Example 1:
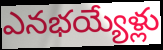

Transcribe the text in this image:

ఎనభయ్యేళ్లు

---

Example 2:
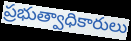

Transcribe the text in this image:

ప్రభుత్వాధికారులు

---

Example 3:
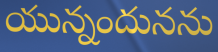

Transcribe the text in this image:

యున్నందునను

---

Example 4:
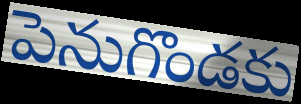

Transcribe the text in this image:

పెనుగొండకు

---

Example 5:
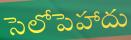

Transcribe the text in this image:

సెలోపెహాదు